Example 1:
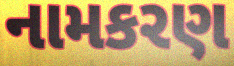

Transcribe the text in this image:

નામકરણ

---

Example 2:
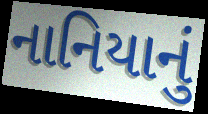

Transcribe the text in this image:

નાનિયાનું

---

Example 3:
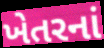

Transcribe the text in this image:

ખેતરનાં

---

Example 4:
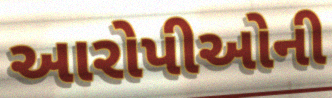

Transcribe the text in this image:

આરોપીઓની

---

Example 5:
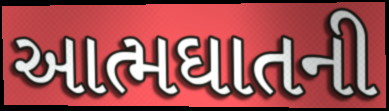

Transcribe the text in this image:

આત્મઘાતની